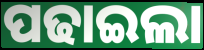
ପଢାଇଲା